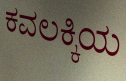
ಕವಲಕ್ಕಿಯ